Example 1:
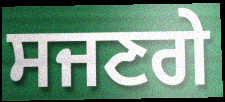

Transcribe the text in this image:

ਸਜਣਗੇ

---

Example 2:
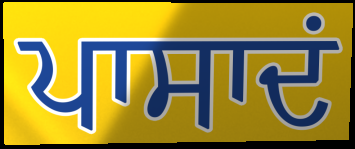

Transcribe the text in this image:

ਪਾਸਾਦਂ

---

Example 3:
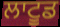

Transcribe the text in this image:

ਲਾਟੂਡ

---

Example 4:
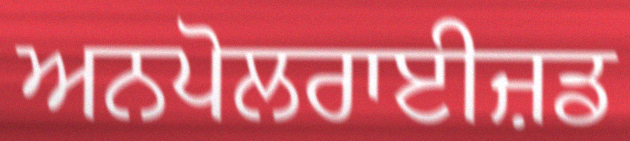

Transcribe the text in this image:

ਅਨਪੋਲਰਾਈਜ਼ਡ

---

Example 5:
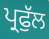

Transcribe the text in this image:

ਪ੍ਰਫੁੱਲ